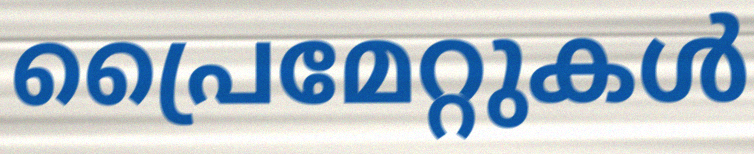
പ്രൈമേറ്റുകൾ